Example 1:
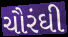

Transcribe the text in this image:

ચૌરંઘી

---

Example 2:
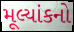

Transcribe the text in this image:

મૂલ્યાંકનો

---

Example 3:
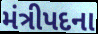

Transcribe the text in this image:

મંત્રીપદના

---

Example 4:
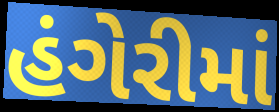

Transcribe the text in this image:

હંગેરીમાં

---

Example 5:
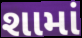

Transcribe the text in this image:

શામાં